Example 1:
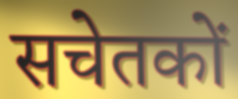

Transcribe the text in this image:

सचेतकों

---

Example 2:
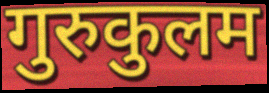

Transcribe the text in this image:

गुरुकुलम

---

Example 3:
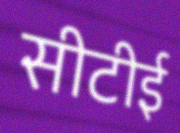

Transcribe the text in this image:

सीटीई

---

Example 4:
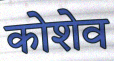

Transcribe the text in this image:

कोशेव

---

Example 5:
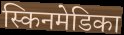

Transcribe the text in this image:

स्किनमेडिका